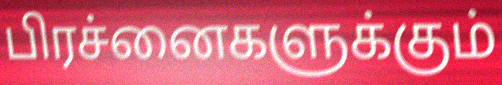
பிரச்னைகளுக்கும்